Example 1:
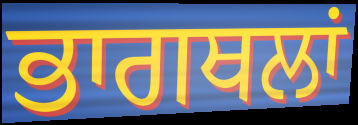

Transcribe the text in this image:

ਭਾਗਥਲਾਂ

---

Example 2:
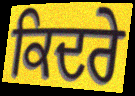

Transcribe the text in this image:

ਕਿਦਰੇ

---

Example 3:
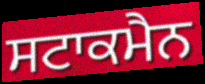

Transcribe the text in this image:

ਸਟਾਕਮੈਨ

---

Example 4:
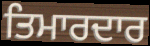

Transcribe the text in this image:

ਤਿਮਾਰਦਾਰ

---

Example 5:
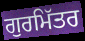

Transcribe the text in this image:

ਗੁਰਮਿੱਤਰ